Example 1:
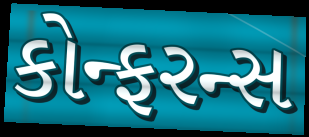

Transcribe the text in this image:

કોન્ફરન્સ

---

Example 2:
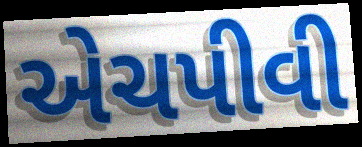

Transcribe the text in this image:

એચપીવી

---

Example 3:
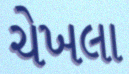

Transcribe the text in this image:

ચેખલા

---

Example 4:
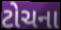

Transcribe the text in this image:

ટોચના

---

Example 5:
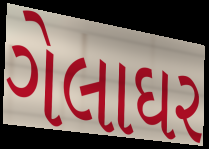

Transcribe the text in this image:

ગેલાઘર